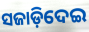
ସଜାଡ଼ିଦେଇ